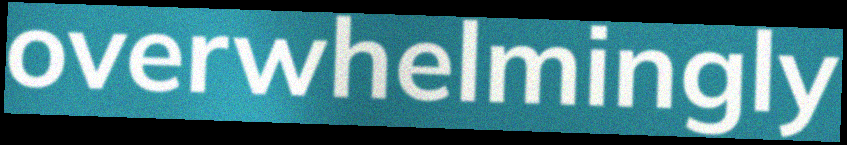
overwhelmingly